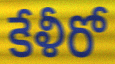
కేళీరో